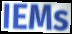
IEMs